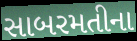
સાબરમતીના